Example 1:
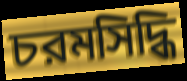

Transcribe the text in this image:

চরমসিদ্ধি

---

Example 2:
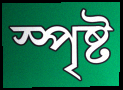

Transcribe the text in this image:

স্পৃষ্ট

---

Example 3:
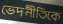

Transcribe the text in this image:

ভেদনীতিকে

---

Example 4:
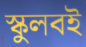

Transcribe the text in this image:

স্কুলবই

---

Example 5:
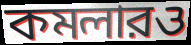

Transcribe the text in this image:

কমলারও